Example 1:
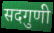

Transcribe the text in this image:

सदगुणी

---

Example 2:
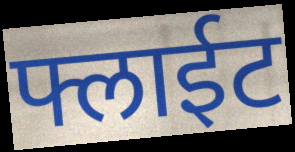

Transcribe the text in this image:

फ्लाईट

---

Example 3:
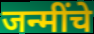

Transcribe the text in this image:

जन्मींचे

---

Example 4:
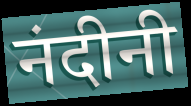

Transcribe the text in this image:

नंदीनी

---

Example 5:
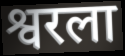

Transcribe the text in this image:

श्वरला